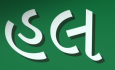
હલ